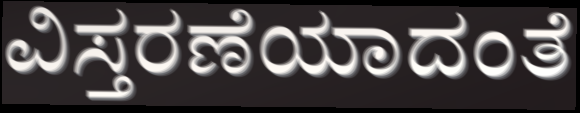
ವಿಸ್ತರಣೆಯಾದಂತೆ